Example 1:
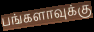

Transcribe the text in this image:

பங்களாவுக்கு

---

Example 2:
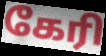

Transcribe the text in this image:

கேரி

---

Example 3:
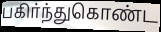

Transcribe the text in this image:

பகிர்ந்துகொண்ட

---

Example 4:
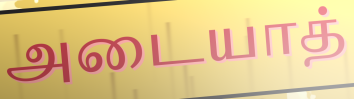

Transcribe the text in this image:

அடையாத்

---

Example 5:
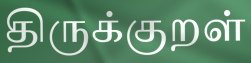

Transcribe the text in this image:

திருக்குறள்